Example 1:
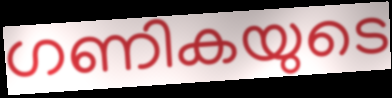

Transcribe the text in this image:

ഗണികയുടെ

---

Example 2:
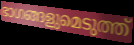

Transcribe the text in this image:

ഭാഗങ്ങളുമെടുത്ത്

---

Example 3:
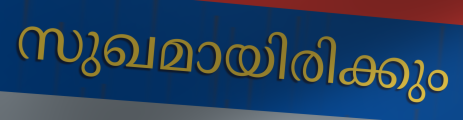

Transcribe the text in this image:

സുഖമായിരിക്കും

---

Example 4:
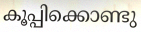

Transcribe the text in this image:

കൂപ്പിക്കൊണ്ടു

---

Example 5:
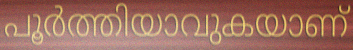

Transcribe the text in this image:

പൂർത്തിയാവുകയാണ്